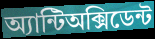
অ্যান্টিঅক্সিডেন্ট